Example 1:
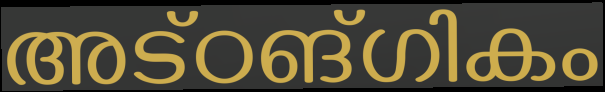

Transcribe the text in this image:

അട്ഠങ്ഗികം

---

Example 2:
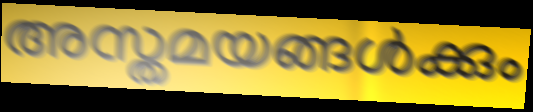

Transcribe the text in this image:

അസ്തമയങ്ങൾക്കും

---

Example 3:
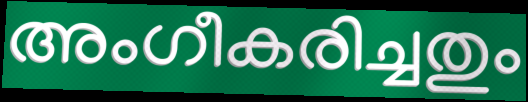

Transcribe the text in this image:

അംഗീകരിച്ചതും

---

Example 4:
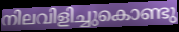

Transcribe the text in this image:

നിലവിളിച്ചുകൊണ്ടു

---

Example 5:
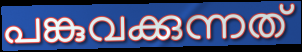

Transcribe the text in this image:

പങ്കുവക്കുന്നത്